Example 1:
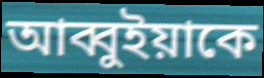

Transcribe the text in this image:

আব্বুইয়াকে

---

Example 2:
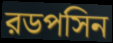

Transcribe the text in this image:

রডপসিন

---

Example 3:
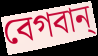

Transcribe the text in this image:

বেগবান্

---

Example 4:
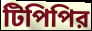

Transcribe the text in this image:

টিপিপির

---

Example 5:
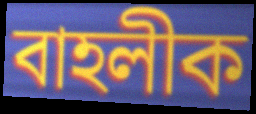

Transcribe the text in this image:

বাহলীক